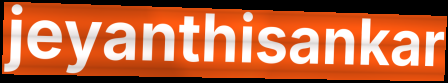
jeyanthisankar